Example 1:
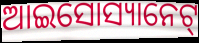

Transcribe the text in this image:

ଆଇସୋସ୍ୟାନେଟ୍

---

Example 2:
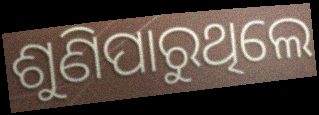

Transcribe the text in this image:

ଶୁଣିପାରୁଥିଲେ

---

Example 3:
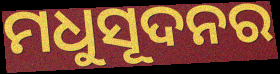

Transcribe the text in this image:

ମଧୁସୂଦନର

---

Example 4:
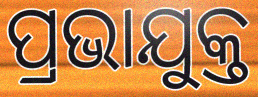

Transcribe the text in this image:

ପ୍ରଭାଯୁକ୍ତ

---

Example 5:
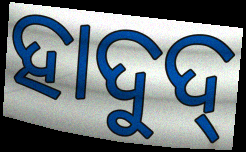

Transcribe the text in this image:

ହାଦୁଦ୍